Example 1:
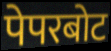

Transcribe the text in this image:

पेपरबोट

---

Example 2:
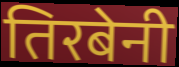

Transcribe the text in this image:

तिरबेनी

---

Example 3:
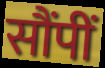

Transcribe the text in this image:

सौंपीं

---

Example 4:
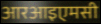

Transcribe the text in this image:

आरआइएमसी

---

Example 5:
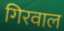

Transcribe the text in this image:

गिरवाल